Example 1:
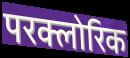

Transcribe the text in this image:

परक्लोरिक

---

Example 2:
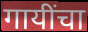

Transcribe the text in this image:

गायींचा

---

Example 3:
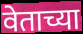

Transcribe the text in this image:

वेताच्या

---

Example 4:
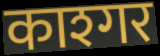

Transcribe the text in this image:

काश्गर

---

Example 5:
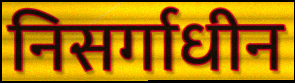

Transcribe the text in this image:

निसर्गाधीन